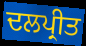
ਦਲਪ੍ਰੀਤ